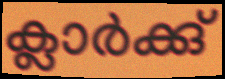
ക്ലാർക്കു്